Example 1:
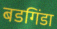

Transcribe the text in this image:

बडगिंडा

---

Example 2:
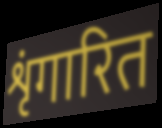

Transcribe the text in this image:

शृंगारित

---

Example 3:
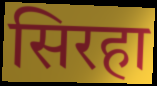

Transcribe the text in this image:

सिरहा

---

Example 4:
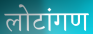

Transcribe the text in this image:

लोटांगण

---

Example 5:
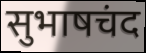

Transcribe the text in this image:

सुभाषचंद